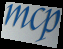
mcp